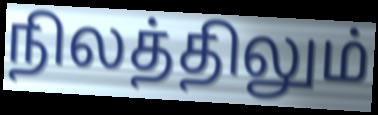
நிலத்திலும்